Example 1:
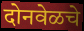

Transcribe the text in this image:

दोनवेळचे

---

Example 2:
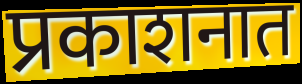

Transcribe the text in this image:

प्रकाशनात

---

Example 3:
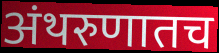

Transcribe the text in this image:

अंथरुणातच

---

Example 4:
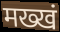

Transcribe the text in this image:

मख्खं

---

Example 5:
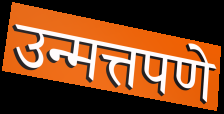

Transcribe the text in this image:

उन्मत्तपणे